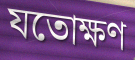
যতোক্ষণ